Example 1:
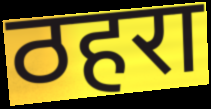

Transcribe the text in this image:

ठहरा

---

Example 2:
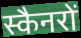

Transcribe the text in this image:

स्कैनरों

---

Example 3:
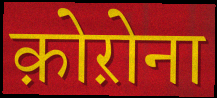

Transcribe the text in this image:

क़ोऱोना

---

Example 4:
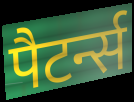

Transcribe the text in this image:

पैटर्न्स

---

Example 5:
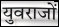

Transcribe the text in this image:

युवराजों